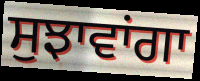
ਸੁਝਾਵਾਂਗਾ